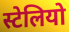
स्टेलियो